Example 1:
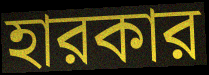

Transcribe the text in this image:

হারকার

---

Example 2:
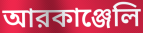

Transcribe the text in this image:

আরকাঞ্জেলি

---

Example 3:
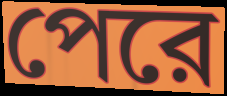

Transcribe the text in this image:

পেরে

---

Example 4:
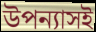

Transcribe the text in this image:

উপন্যাসই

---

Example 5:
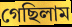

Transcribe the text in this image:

গেছিলাম